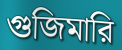
গুজিমারি